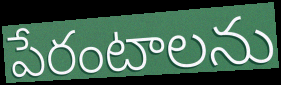
పేరంటాలను